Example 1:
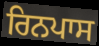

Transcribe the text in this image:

ਰਿਨਪਾਸ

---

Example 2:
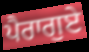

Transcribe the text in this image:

ਪੈਰਾਗੁਏ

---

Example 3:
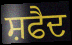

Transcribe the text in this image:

ਸ਼ਫੈਦ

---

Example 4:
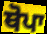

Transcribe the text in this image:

ਥੋਪਾ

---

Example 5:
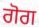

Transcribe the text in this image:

ਗੋਗ